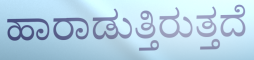
ಹಾರಾಡುತ್ತಿರುತ್ತದೆ